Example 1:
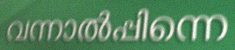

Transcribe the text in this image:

വന്നാൽപ്പിന്നെ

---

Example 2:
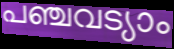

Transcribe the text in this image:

പഞ്ചവട്യാം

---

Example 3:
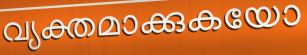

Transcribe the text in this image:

വ്യക്തമാക്കുകയോ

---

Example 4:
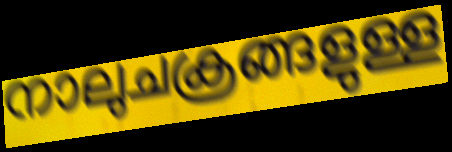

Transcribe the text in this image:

നാലുചക്രങ്ങളുള്ള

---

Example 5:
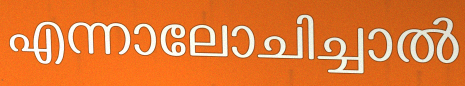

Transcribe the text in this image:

എന്നാലോചിച്ചാൽ